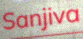
Sanjiva